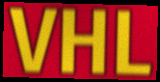
VHL